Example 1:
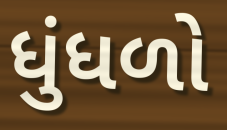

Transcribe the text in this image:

ધુંધળો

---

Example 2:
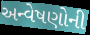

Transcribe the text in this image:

અન્વેષણોની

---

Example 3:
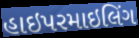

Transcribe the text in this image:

હાઇપરમાઇલિંગ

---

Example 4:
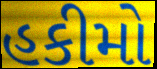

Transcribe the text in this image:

હકીમો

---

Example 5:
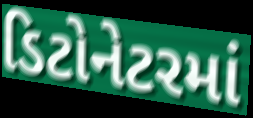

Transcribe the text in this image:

ડિટોનેટરમાં